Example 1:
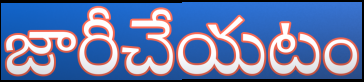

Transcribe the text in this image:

జారీచేయటం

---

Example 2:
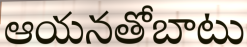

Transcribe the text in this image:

ఆయనతోబాటు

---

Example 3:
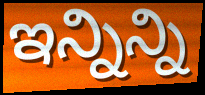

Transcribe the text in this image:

ఇన్నిన్ని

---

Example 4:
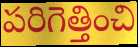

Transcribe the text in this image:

పరిగెత్తించి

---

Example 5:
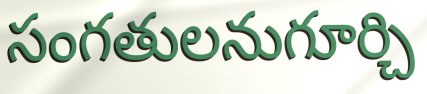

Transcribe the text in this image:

సంగతులనుగూర్చి